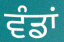
ਵੰਡਾਂ